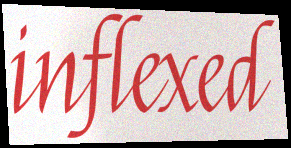
inflexed